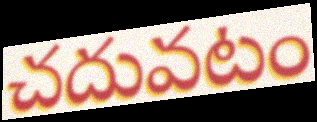
చదువటం